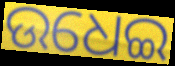
ଉଧେଇ